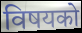
विषयको